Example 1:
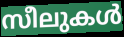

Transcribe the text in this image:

സീലുകൾ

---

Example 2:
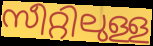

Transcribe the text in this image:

സീറ്റിലുള്ള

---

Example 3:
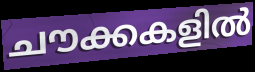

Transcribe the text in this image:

ചൗക്കകളിൽ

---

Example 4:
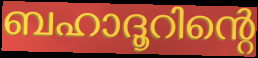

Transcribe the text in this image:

ബഹാദൂറിന്റെ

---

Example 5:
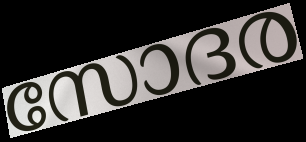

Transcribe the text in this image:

സോദര